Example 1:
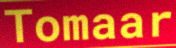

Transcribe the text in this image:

Tomaar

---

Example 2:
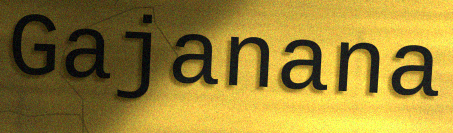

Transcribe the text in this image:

Gajanana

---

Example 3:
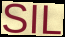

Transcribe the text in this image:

SIL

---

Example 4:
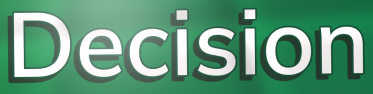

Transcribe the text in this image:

Decision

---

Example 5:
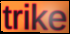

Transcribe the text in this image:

trike